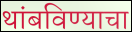
थांबविण्याचा